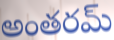
అంతరమ్